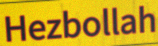
Hezbollah